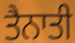
ਤੈਨਾਤੀ